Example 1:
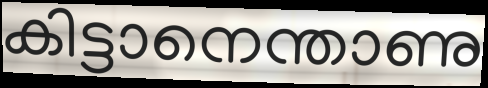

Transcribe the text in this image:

കിട്ടാനെന്താണു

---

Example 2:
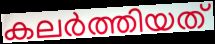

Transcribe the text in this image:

കലർത്തിയത്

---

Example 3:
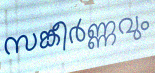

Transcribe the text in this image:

സങ്കീർണ്ണവും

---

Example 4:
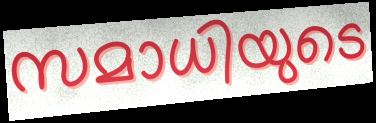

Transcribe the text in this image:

സമാധിയുടെ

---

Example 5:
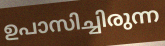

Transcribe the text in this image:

ഉപാസിച്ചിരുന്ന